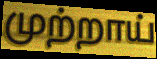
முற்றாய்